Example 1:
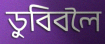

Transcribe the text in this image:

ডুবিবলৈ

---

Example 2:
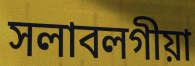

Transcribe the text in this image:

সলাবলগীয়া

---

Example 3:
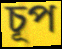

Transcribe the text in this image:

চূপ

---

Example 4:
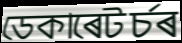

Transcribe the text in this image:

ডেকাৰেটৰ্চৰ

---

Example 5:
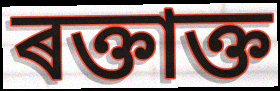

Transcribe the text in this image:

ৰক্তাক্ত